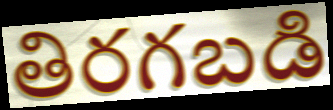
తిరగబడి